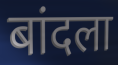
बांदला